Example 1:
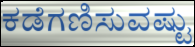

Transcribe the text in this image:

ಕಡೆಗಣಿಸುವಷ್ಟು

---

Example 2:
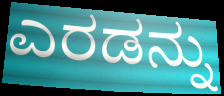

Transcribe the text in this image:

ಎರಡನ್ನು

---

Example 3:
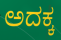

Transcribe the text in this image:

ಅದಕ್ಕ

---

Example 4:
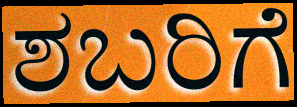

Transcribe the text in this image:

ಶಬರಿಗೆ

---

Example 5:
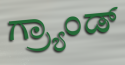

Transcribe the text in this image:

ಗ್ರ್ಯಾಂಡ್